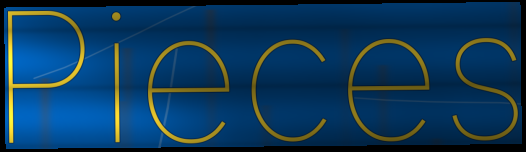
Pieces